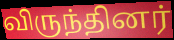
விருந்தினர்